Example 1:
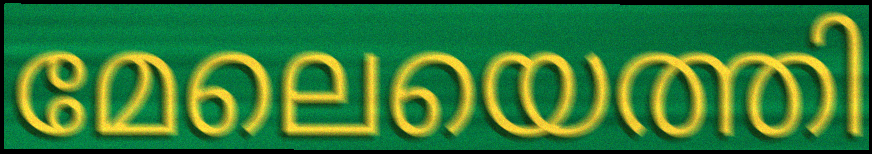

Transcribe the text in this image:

മേലെയെത്തി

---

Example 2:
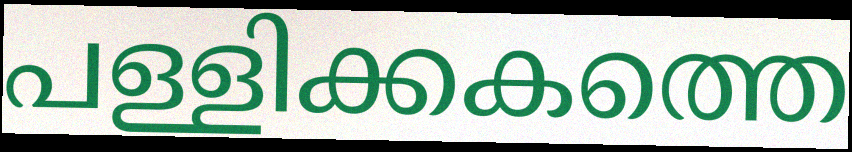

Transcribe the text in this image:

പള്ളിക്കകത്തെ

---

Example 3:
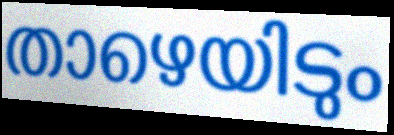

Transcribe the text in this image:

താഴെയിടും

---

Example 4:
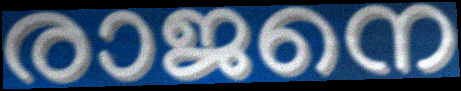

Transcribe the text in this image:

രാജനെ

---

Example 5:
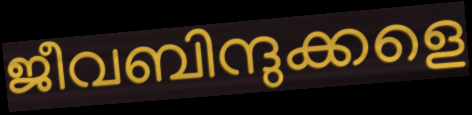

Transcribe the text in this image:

ജീവബിന്ദുക്കളെ